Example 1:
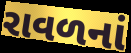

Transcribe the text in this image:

રાવળનાં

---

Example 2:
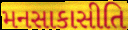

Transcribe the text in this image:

મનસાકાસીતિ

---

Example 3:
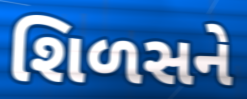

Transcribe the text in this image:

શિળસને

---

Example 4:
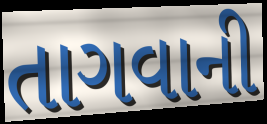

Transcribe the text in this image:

તાગવાની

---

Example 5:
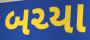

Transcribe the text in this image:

બચ્યા